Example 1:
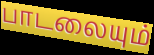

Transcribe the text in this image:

பாடலையும்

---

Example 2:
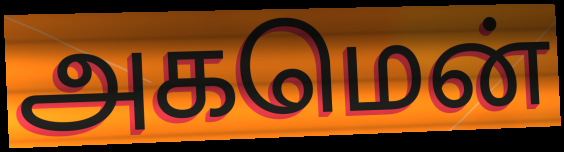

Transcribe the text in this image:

அகமென்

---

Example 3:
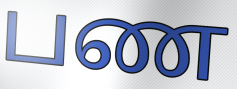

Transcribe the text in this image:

பண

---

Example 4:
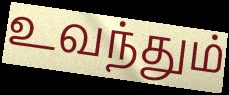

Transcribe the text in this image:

உவந்தும்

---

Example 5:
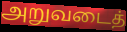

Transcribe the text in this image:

அறுவடைத்